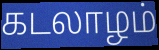
கடலாழம்